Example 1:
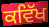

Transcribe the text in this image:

ਕਵਿੱਖ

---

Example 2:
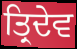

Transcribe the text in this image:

ਤ੍ਰਿਦੇਵ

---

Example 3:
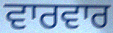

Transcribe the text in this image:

ਵਾਰਵਾਰ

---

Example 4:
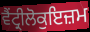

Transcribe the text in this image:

ਵੈਂਟ੍ਰੀਲੋਕੁਇਜ਼ਮ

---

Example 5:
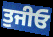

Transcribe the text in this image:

ਤੁਜੀਓ